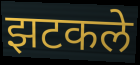
झटकले